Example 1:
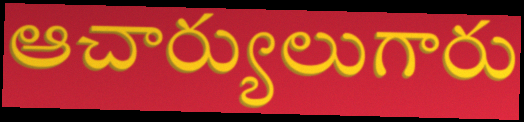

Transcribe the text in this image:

ఆచార్యులుగారు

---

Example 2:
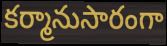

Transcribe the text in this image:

కర్మానుసారంగా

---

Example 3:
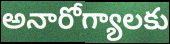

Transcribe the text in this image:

అనారోగ్యాలకు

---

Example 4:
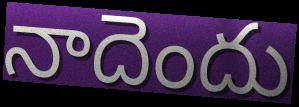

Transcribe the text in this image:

నాదెందు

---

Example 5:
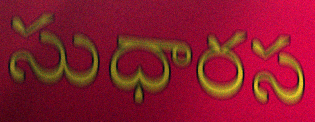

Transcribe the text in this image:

సుధారస